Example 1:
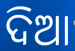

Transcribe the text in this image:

ଦିଆ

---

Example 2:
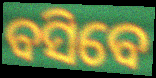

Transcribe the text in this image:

ବସିବେ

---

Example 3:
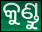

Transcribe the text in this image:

କୁଣ୍ଡୁ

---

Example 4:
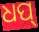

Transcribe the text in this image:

ଧପ୍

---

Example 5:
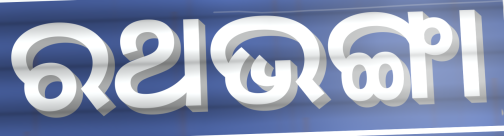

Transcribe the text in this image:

ରଥଭଙ୍ଗା